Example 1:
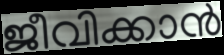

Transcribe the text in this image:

ജീവിക്കാൻ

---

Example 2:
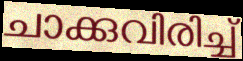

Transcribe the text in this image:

ചാക്കുവിരിച്ച്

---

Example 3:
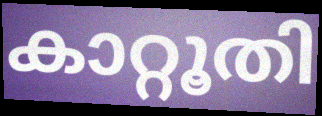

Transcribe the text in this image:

കാറ്റൂതി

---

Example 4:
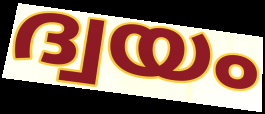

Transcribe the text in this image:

ദ്വയം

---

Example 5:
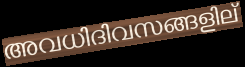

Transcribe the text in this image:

അവധിദിവസങ്ങളില്